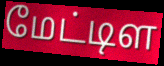
மேட்டிள